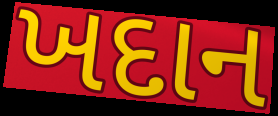
ખદાન